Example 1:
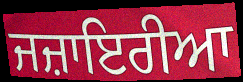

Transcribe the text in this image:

ਜਜ਼ਾਇਰੀਆ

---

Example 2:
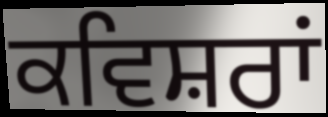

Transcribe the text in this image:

ਕਵਿਸ਼ਰਾਂ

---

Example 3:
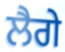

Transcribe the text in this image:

ਲੈਗੇ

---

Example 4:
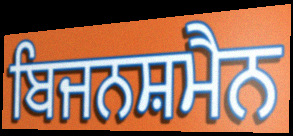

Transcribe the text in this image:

ਬਿਜਨਸ਼ਮੈਨ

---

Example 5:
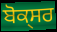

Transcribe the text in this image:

ਬੋਕ੍ਸਰ